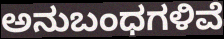
ಅನುಬಂಧಗಳಿವೆ